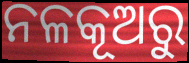
ନଳକୂଅରୁ